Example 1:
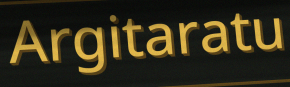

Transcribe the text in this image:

Argitaratu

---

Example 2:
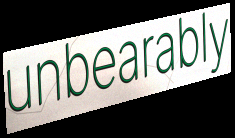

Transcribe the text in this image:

unbearably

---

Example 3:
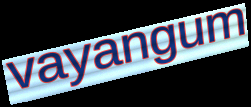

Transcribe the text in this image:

vayangum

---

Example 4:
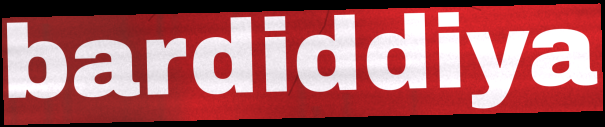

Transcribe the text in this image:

bardiddiya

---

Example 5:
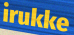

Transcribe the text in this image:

irukke